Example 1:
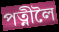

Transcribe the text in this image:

পত্নীলৈ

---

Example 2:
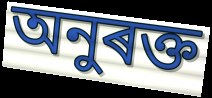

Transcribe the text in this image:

অনুৰক্ত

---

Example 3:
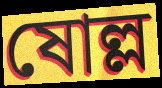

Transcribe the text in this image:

ষোল্ল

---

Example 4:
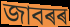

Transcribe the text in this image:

জাবৰৰ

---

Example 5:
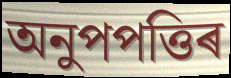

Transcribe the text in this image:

অনুপপত্তিৰ